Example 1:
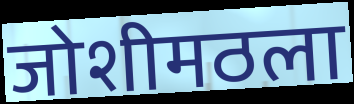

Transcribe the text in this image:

जोशीमठला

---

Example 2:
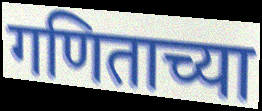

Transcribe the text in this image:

गणिताच्या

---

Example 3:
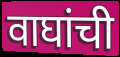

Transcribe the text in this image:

वाघांची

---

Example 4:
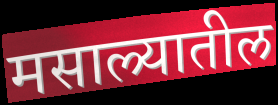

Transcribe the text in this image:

मसाल्यातील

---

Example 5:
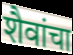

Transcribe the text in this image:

शैवांचा